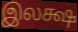
இலக்ஷ